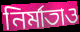
নির্মাতাও